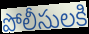
పోలీసులకి